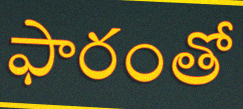
ఫారంతో